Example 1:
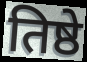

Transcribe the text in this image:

तिष्ठे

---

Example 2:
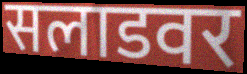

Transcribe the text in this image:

सलाडवर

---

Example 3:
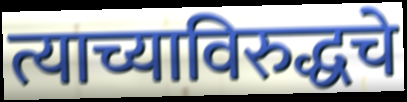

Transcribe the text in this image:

त्याच्याविरुद्धचे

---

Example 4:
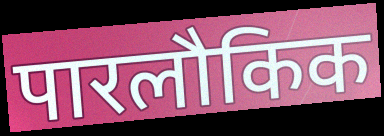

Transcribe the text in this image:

पारलौकिक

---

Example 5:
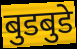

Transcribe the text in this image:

बुडबुडे